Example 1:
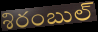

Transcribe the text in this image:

శిరంబుల్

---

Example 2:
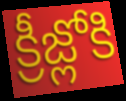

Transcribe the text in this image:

క్రీజ్లోకి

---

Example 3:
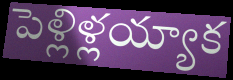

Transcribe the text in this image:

పెళ్లిళ్లయ్యాక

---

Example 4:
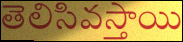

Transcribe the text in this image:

తెలిసివస్తాయి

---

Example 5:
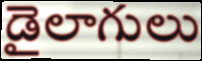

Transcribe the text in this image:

డైలాగులు